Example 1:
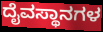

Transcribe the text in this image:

ದೈವಸ್ಥಾನಗಳ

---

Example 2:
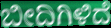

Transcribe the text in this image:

ಬೀದಿಗಿಳಿದೆ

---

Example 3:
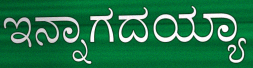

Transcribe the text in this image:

ಇನ್ನಾಗದಯ್ಯಾ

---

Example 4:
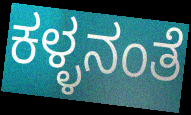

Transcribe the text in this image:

ಕಳ್ಳನಂತೆ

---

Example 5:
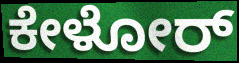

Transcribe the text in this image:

ಕೇಳೋರ್